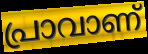
പ്രാവാണ്